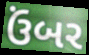
ઉંબર